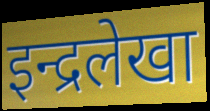
इन्द्रलेखा